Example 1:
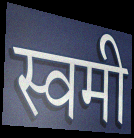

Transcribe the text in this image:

स्वमी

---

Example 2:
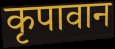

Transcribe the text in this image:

कृपावान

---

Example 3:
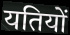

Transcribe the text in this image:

यतियों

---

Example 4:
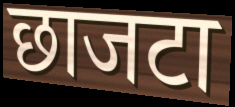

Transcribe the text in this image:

छाजटा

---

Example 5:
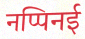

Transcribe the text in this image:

नप्पिनई